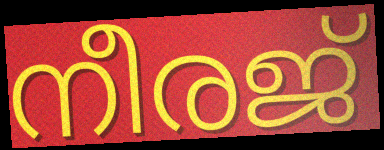
നീരജ്